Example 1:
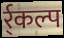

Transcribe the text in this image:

र्र्कल्प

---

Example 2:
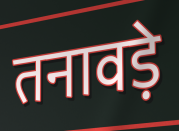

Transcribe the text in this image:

तनावड़े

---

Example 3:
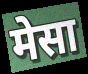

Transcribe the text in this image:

मेसा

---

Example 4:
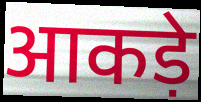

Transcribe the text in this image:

आकड़े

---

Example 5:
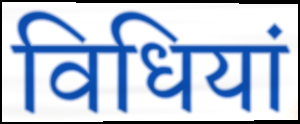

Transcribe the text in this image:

विधियां